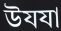
উযযা